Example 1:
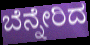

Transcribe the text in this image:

ಬೆನ್ನೇರಿದ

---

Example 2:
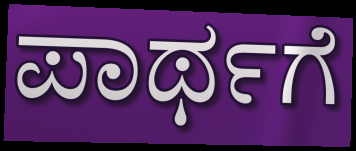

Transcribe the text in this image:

ಪಾರ್ಥಗೆ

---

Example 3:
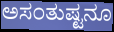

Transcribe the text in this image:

ಅಸಂತುಷ್ಟನೂ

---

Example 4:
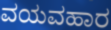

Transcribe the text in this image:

ವಯವಹಾರ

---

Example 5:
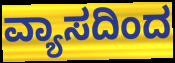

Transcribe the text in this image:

ವ್ಯಾಸದಿಂದ